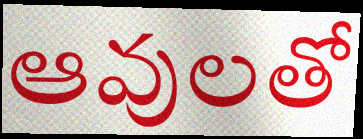
ఆవులతో